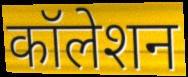
कॉलेशन